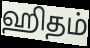
ஹிதம்